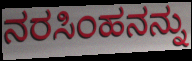
ನರಸಿಂಹನನ್ನು